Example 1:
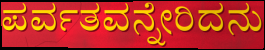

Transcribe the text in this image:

ಪರ್ವತವನ್ನೇರಿದನು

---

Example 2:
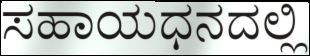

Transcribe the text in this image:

ಸಹಾಯಧನದಲ್ಲಿ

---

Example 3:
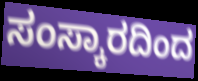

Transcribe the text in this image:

ಸಂಸ್ಕಾರದಿಂದ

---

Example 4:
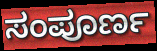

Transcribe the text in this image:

ಸಂಪೂರ್ಣ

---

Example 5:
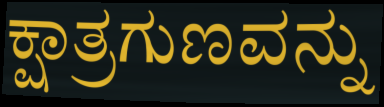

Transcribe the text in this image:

ಕ್ಷಾತ್ರಗುಣವನ್ನು